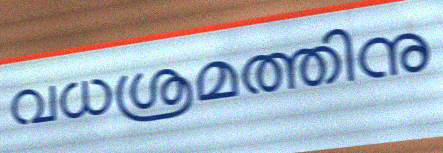
വധശ്രമത്തിനു